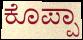
ಕೊಪ್ಪಾ